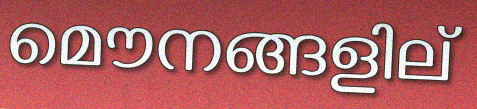
മൌനങ്ങളില്